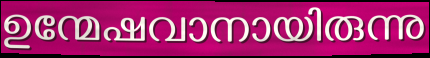
ഉന്മേഷവാനായിരുന്നു